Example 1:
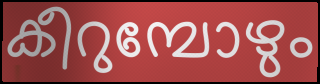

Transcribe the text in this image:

കീറുമ്പോഴും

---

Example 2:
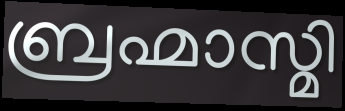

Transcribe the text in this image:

ബ്രഹ്മാസ്മി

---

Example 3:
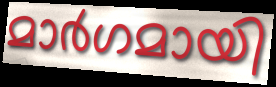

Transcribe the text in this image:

മാർഗമായി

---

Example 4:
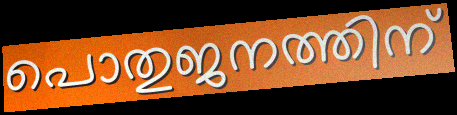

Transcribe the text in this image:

പൊതുജനത്തിന്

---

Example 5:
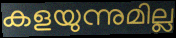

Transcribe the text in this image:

കളയുന്നുമില്ല